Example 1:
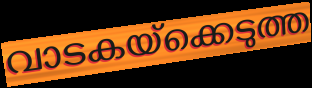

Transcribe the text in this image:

വാടകയ്‌ക്കെടുത്ത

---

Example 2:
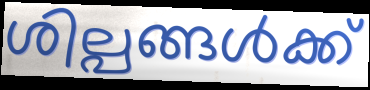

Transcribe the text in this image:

ശില്പങ്ങൾക്ക്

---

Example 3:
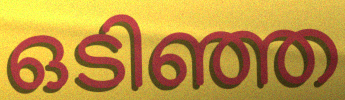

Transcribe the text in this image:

ഒടിഞ്ഞ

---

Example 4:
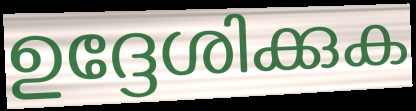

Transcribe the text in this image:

ഉദ്ദേശിക്കുക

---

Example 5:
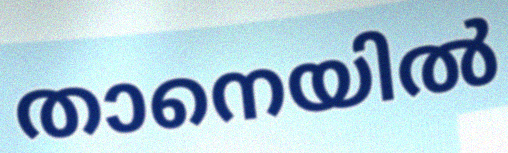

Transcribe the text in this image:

താനെയിൽ